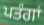
ਪਤੰਗਾਂ